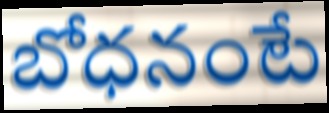
బోధనంటే